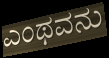
ಎಂಥವನು